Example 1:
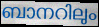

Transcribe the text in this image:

ബാനറിലും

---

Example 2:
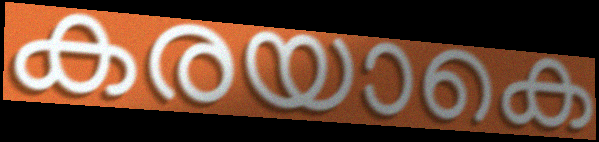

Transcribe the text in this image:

കരയാകെ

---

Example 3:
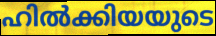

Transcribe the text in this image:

ഹിൽക്കിയയുടെ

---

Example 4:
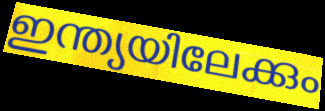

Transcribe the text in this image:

ഇന്ത്യയിലേക്കും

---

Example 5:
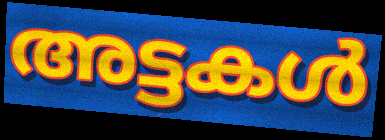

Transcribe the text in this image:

അട്ടകൾ